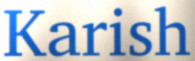
Karish